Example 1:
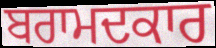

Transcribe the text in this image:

ਬਰਾਮਦਕਾਰ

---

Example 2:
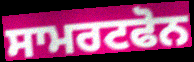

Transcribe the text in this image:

ਸਾਮਰਟਫੋਨ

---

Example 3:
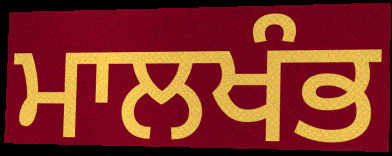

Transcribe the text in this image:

ਮਾਲਖੰਭ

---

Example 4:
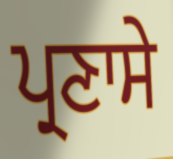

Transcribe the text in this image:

ਪ੍ਰਣਾਸੇ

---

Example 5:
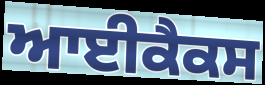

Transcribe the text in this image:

ਆਈਕੈਕਸ